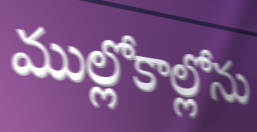
ముల్లోకాల్లోను